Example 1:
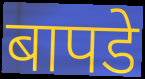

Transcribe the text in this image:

बापडे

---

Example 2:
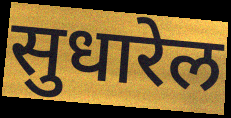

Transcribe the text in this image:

सुधारेल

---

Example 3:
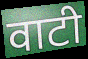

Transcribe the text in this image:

वाटी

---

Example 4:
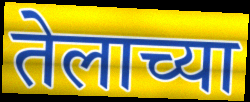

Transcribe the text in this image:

तेलाच्या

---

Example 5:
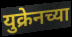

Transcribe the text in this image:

युक्रेनच्या